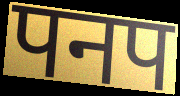
पनप